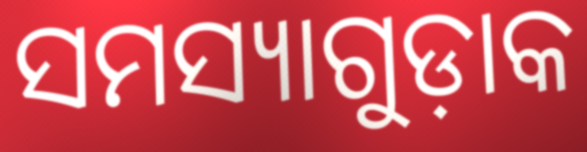
ସମସ୍ୟାଗୁଡ଼ାକ